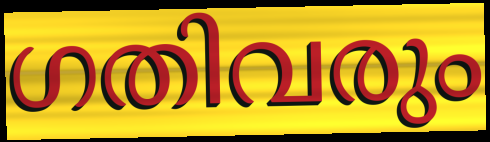
ഗതിവരും